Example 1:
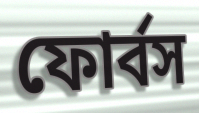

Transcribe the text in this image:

ফোর্বস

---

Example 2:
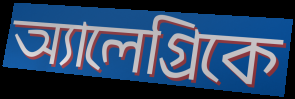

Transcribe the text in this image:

অ্যালেগ্রিকে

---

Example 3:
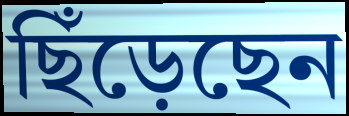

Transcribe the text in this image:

ছিঁড়েছেন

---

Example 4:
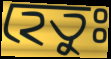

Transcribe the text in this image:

হেতুঃ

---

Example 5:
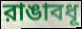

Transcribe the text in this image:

রাঙাবধূ